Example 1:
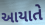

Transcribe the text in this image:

આયાતે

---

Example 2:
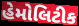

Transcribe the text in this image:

હેમોલિટીક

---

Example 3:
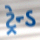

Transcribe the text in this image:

ટ્રેન્ડ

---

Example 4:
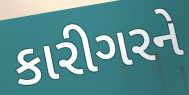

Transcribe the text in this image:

કારીગરને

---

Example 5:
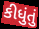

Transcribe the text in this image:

કીધુંતું